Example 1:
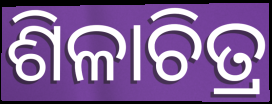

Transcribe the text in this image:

ଶିଳାଚିତ୍ର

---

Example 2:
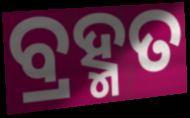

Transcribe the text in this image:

ବ୍ରହ୍ମତ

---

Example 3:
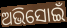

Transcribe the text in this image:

ଅଭିସୋଇଁ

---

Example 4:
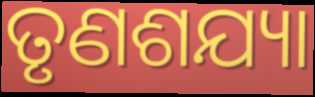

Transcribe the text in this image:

ତୃଣଶଯ୍ୟା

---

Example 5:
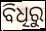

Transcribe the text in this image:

ବିଧିରୁ